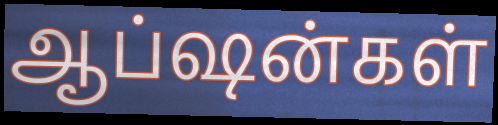
ஆப்ஷன்கள்